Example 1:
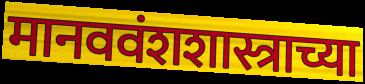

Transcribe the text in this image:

मानववंशशास्त्राच्या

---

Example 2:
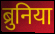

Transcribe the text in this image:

ब्रुनिया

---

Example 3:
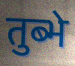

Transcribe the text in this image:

तुब्भे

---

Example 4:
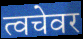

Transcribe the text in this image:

त्वचेवर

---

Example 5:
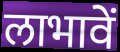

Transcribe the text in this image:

लाभावें